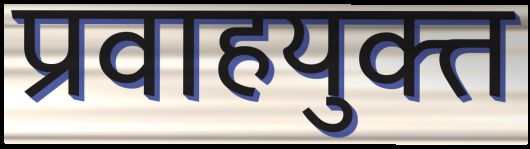
प्रवाहयुक्त